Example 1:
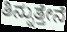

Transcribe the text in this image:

ತಿನ್ನುತ್ತೇನೆ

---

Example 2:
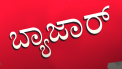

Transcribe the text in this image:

ಬ್ಯಾಜಾರ್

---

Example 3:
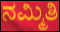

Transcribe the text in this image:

ನಮ್ಮಿತಿ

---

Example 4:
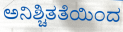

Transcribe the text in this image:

ಅನಿಶ್ಚಿತತೆಯಿಂದ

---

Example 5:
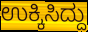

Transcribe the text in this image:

ಉಕ್ಕಿಸಿದ್ದು